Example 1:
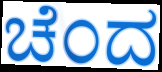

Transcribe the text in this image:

ಚೆಂದ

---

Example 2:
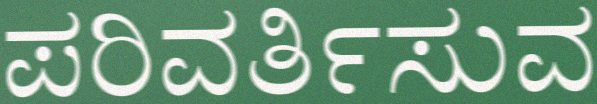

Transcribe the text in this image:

ಪರಿವರ್ತಿಸುವ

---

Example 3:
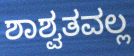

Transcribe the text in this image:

ಶಾಶ್ವತವಲ್ಲ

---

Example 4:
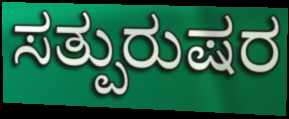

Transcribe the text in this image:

ಸತ್ಪುರುಷರ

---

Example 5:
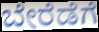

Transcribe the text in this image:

ಬೇರೆಡೆಗೆ